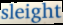
sleight